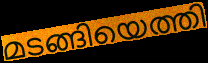
മടങ്ങിയെത്തി